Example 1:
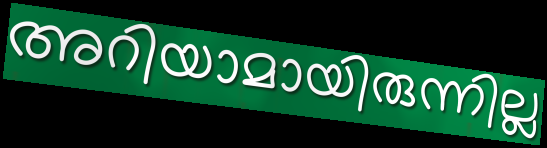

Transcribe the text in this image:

അറിയാമായിരുന്നില്ല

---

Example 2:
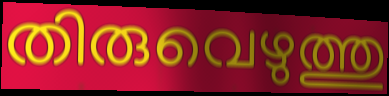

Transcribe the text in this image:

തിരുവെഴുത്തു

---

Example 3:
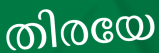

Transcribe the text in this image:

തിരയേ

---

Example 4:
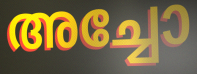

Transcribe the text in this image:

അച്ചോ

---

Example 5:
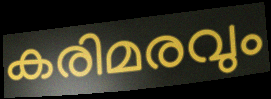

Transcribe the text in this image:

കരിമരവും